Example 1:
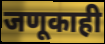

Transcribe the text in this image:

जणूकाही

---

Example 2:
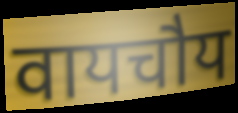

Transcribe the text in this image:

वायचौय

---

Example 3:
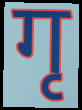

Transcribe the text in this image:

गृ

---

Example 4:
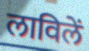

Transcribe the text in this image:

लाविलें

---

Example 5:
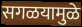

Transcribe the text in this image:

सगळयामुळे